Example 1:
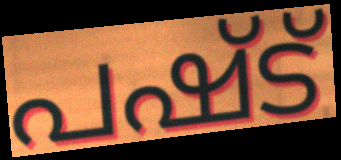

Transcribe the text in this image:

പഷ്ട്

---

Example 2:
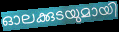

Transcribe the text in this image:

ഓലക്കുടയുമായി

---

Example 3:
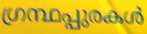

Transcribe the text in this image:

ഗ്രന്ഥപ്പുരകൾ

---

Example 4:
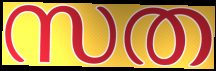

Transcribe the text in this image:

സത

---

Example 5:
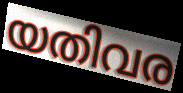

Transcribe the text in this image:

യതിവര